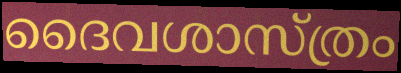
ദൈവശാസ്ത്രം